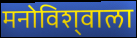
मनोविश्वाला